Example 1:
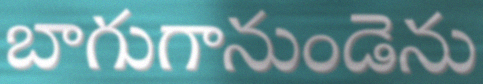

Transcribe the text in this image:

బాగుగానుండెను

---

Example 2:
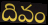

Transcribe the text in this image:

దివం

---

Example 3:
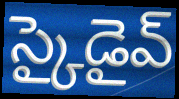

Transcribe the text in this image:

స్కైడైవ్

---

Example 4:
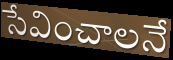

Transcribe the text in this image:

సేవించాలనే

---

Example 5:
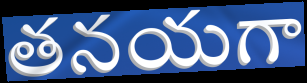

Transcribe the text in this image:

తనయగా